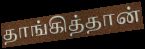
தாங்கித்தான்